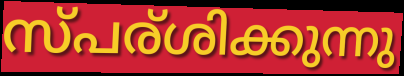
സ്പര്ശിക്കുന്നു